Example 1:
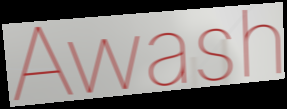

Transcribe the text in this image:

Awash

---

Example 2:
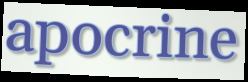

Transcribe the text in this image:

apocrine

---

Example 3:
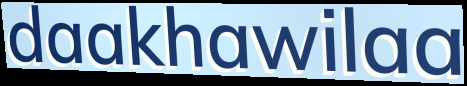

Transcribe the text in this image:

daakhawilaa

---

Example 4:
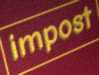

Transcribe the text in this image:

impost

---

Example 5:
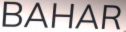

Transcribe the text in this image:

BAHAR